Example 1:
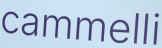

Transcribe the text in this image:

cammelli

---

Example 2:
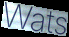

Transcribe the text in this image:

Wats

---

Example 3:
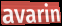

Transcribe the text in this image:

avarin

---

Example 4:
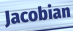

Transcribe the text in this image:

Jacobian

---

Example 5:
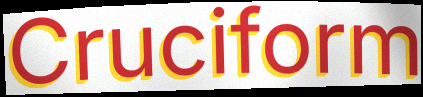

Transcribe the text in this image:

Cruciform